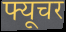
फ्यूचर